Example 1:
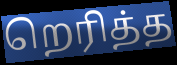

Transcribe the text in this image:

றெரித்த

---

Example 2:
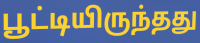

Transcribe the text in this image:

பூட்டியிருந்தது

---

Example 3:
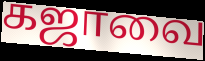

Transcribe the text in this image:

கஜாவை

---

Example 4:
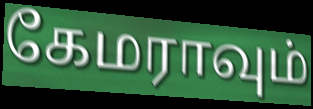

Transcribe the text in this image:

கேமராவும்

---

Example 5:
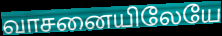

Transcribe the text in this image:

வாசனையிலேயே